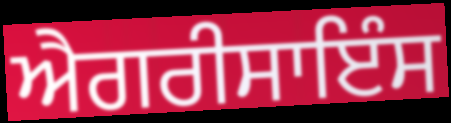
ਐਗਰੀਸਾਇੰਸ